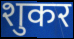
शुकर